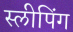
स्लीपिंग